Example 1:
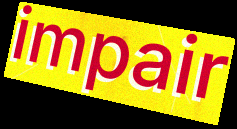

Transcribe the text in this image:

impair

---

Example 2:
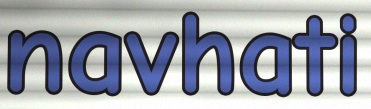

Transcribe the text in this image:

navhati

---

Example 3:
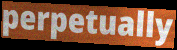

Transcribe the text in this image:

perpetually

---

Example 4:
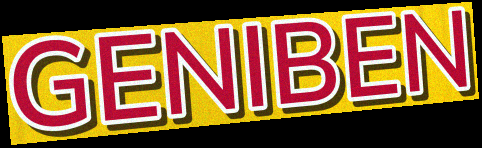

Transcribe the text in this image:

GENIBEN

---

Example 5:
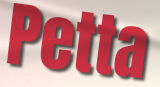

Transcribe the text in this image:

Petta